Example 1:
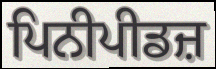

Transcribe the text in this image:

ਪਿਨੀਪੀਡਜ਼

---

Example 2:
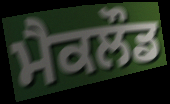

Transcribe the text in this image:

ਮੈਕਲੌਡ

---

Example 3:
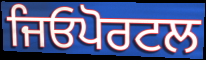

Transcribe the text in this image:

ਜਿਓਪੋਰਟਲ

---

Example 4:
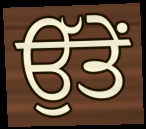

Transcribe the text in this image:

ਉੱਤੇਂ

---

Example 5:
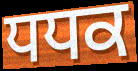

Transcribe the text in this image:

ਧਧਕ